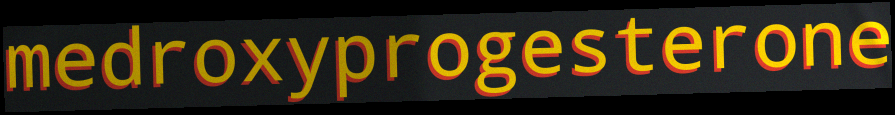
medroxyprogesterone